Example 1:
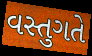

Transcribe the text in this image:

વસ્તુગતે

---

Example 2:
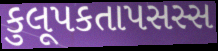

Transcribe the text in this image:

કુલૂપકતાપસસ્સ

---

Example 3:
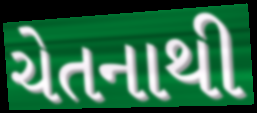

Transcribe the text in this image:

ચેતનાથી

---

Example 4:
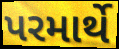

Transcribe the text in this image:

પરમાર્થે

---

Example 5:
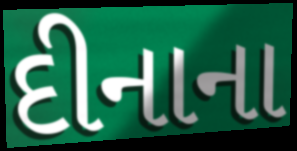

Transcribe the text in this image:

દીનાના